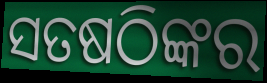
ସତଷଠିଙ୍କର